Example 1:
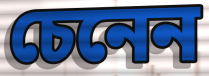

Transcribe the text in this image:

চেনেন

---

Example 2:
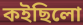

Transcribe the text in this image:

কইছিলো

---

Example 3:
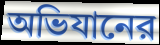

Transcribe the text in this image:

অভিযানের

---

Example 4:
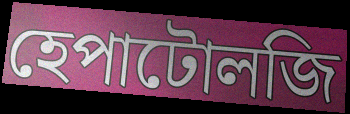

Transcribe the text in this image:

হেপাটোলজি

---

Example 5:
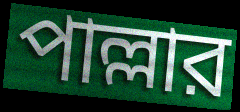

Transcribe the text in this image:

পাল্লার